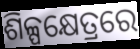
ଶିଳ୍ପକ୍ଷେତ୍ରରେ